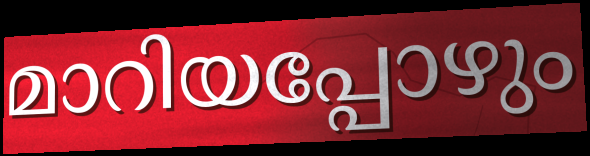
മാറിയപ്പോഴും